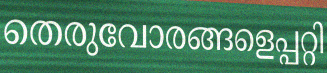
തെരുവോരങ്ങളെപ്പറ്റി